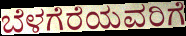
ಬೆಳಗೆರೆಯವರಿಗೆ